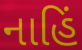
નાહિં